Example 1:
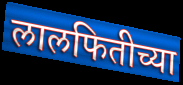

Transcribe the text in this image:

लालफितीच्या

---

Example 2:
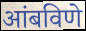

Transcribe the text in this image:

आंबविणे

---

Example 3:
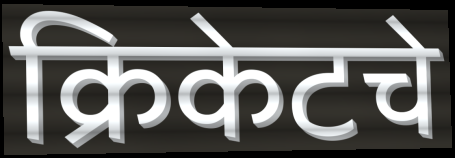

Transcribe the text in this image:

क्रिकेटचे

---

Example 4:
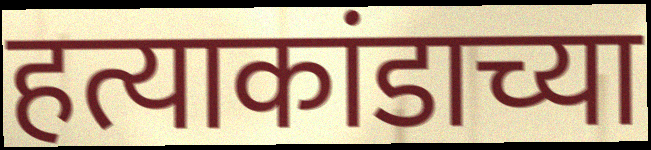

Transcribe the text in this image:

हत्याकांडाच्या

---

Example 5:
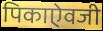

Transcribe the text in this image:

पिकाऐवजी